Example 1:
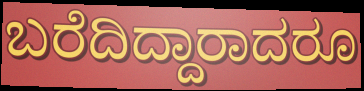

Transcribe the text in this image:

ಬರೆದಿದ್ದಾರಾದರೂ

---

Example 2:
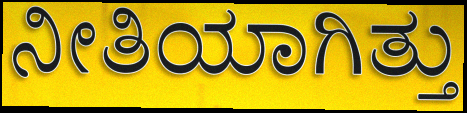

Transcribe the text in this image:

ನೀತಿಯಾಗಿತ್ತು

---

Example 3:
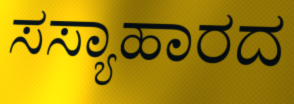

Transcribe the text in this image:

ಸಸ್ಯಾಹಾರದ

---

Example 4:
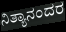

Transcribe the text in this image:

ನಿತ್ಯಾನಂದರ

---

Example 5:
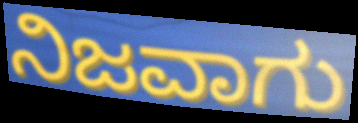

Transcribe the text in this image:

ನಿಜವಾಗು